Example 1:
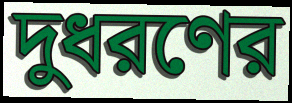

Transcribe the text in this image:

দুধরণের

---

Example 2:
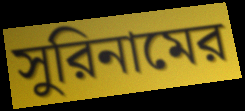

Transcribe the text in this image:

সুরিনামের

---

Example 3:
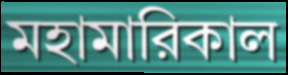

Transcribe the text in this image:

মহামারিকাল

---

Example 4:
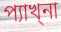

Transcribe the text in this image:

প্যাখ্না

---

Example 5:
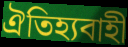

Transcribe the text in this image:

ঐতিহ্যবাহী